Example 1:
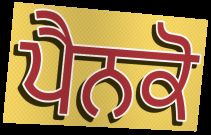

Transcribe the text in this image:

ਪੈਨਕੋ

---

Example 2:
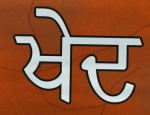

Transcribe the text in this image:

ਖੇਦ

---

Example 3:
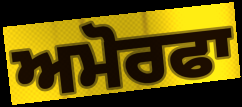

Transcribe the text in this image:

ਅਮੋਰਫਾ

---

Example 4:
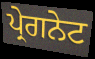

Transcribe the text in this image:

ਪ੍ਰੇਗਨੇਟ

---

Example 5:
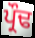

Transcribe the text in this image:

ਪ੍ਰੌਢ